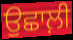
ਉਛਾਲ਼ੀ